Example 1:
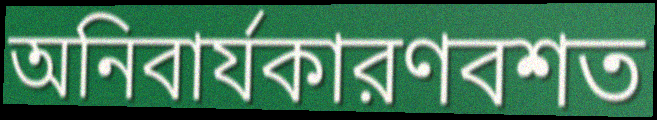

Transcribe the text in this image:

অনিবার্যকারণবশত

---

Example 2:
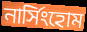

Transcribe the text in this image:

নার্সিংহোম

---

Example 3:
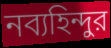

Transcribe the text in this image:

নব্যহিন্দুর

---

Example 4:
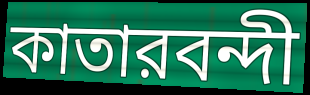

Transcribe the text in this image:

কাতারবন্দী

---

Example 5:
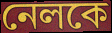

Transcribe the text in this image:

নেলকে